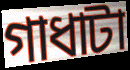
গাধাটা